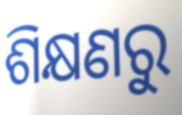
ଶିକ୍ଷଣରୁ